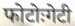
फोटोःगेटी